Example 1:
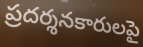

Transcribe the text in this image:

ప్రదర్శనకారులపై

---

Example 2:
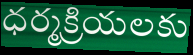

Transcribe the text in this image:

ధర్మక్రియలకు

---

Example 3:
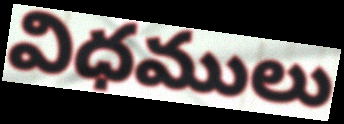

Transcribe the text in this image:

విధములు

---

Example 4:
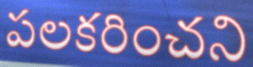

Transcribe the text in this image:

పలకరించని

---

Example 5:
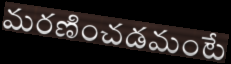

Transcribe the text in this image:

మరణించడమంటే